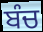
ਬੰਚ